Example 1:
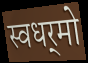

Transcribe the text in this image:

स्वधर्मो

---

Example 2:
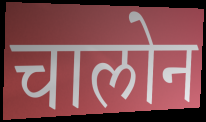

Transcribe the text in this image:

चालोन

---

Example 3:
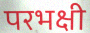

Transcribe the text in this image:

परभक्षी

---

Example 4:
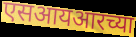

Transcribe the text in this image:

एसआयआरच्या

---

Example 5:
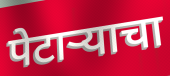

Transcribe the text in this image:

पेटाऱ्याचा